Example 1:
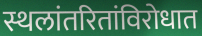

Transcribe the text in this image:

स्थलांतरितांविरोधात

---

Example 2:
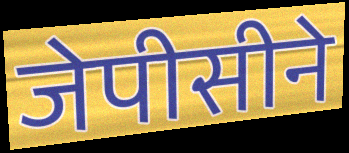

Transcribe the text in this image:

जेपीसीने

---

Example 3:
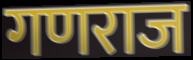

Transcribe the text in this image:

गणराज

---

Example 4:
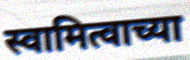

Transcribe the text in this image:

स्वामित्वाच्या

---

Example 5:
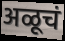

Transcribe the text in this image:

अळूचं